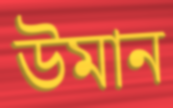
উমান